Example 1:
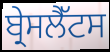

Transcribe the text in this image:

ਬ੍ਰੇਸਲੈੱਟਸ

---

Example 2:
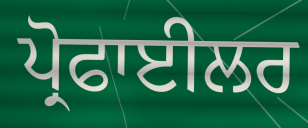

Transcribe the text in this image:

ਪ੍ਰੋਫਾਈਲਰ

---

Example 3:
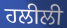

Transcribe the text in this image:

ਹਲੀਲੀ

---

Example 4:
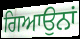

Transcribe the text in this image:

ਗਿਆਉਨਾਂ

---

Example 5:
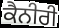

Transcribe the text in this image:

ਕੈਨੀਰੀ